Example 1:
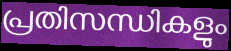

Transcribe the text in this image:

പ്രതിസന്ധികളും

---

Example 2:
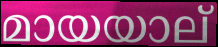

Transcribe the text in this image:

മായയാല്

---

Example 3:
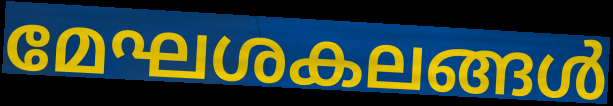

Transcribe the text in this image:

മേഘശകലങ്ങൾ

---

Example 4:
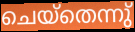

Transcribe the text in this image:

ചെയ്തെന്നു്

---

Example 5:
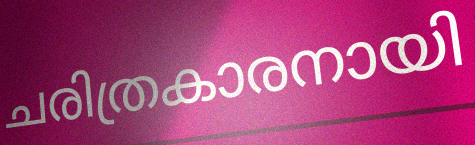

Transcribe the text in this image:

ചരിത്രകാരനായി